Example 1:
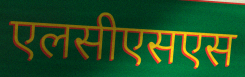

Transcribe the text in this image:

एलसीएसएस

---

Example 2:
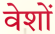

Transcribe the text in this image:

वेशों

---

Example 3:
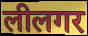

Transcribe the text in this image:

लीलगर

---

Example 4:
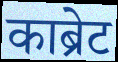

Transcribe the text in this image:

काब्रेट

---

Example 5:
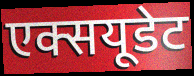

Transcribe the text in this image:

एक्सयूडेट